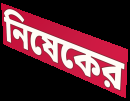
নিষেকের